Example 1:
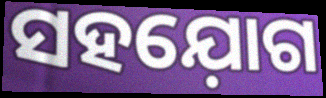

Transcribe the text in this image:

ସହଯ଼ୋଗ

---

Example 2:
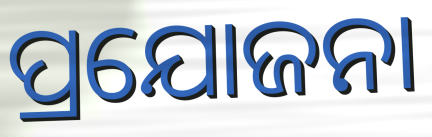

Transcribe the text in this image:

ପ୍ରଯୋଜନା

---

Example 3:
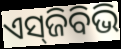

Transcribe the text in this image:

ଏସ୍‌ଜିବିଭି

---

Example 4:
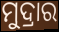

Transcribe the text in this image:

ମୁଦ୍ରାର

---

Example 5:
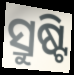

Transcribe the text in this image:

ସ୍ରୁଷ୍ଟି